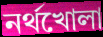
নর্থখোলা